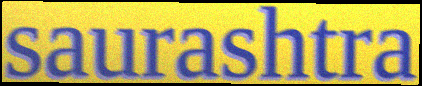
saurashtra